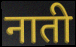
नाती